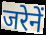
जरेनें